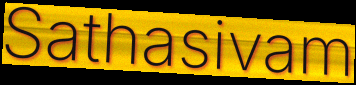
Sathasivam